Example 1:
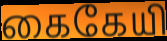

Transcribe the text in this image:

கைகேயி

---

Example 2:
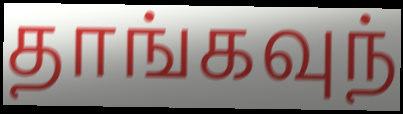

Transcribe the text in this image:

தாங்கவுந்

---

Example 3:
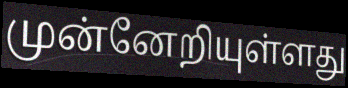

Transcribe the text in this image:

முன்னேறியுள்ளது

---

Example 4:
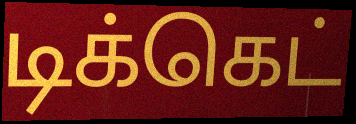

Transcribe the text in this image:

டிக்கெட்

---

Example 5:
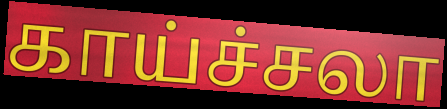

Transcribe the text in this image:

காய்ச்சலா